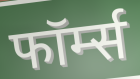
फॉर्म्स